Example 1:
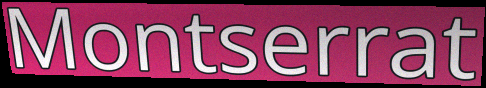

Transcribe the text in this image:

Montserrat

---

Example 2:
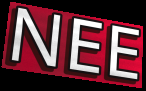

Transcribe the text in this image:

NEE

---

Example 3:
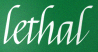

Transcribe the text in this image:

lethal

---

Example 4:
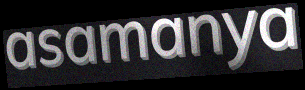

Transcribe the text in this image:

asamanya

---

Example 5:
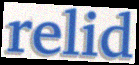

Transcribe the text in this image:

relid